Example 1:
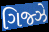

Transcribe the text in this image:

ગિજ્ઝે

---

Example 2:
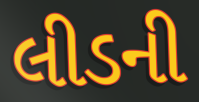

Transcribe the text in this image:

લીડની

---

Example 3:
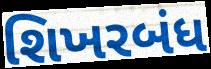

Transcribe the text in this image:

શિખરબંધ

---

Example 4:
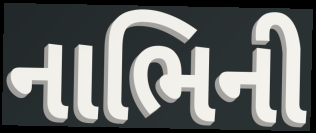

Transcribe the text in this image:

નાભિની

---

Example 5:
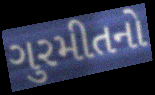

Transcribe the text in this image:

ગુરમીતનો